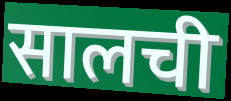
सालची